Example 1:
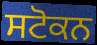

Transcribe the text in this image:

ਸਟੋਕਨ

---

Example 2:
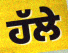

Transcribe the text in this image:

ਹੱਲੇ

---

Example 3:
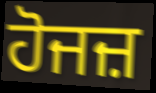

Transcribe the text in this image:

ਹੋਜਜ਼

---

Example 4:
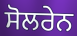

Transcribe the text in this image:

ਸੋਲਰੇਨ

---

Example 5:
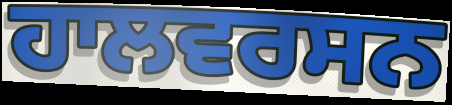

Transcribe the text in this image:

ਹਾਲਵਰਸਨ